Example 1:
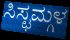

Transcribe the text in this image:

ಸಿಸ್ಟಮ್ಗಳ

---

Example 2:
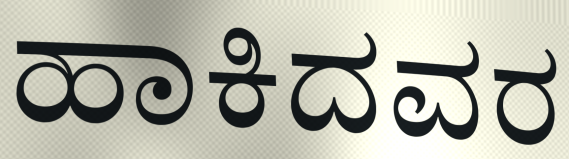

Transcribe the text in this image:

ಹಾಕಿದವರ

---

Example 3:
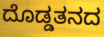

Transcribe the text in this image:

ದೊಡ್ಡತನದ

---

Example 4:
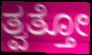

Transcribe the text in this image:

ತ್ವತ್ತೋ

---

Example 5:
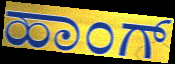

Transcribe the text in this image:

ಹಾಂಗ್